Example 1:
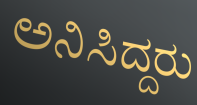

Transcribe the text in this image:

ಅನಿಸಿದ್ದರು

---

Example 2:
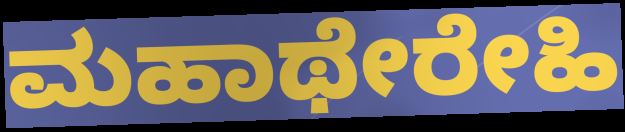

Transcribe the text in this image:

ಮಹಾಥೇರೇಹಿ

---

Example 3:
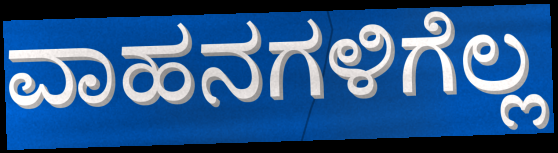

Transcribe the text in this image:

ವಾಹನಗಳಿಗೆಲ್ಲ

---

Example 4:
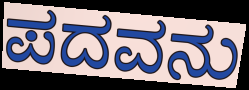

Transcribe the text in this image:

ಪದವನು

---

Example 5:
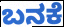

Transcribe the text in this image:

ಬನಕೆ